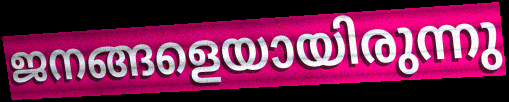
ജനങ്ങളെയായിരുന്നു